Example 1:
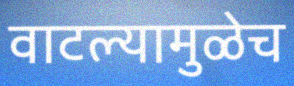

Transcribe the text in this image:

वाटल्यामुळेच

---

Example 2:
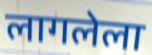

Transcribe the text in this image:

लागलेला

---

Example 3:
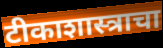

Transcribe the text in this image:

टीकाशास्त्राचा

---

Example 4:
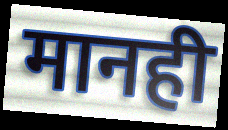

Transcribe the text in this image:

मानही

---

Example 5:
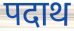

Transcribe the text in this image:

पदाथ